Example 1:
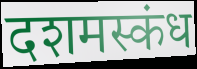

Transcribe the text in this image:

दशमस्कंध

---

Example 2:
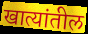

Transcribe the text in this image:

खात्यांतील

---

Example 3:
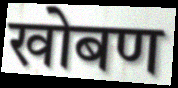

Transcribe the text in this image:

खोबण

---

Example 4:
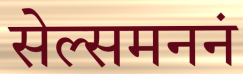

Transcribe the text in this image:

सेल्समननं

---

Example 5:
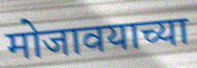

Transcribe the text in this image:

मोजावयाच्या